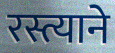
रस्त्याने